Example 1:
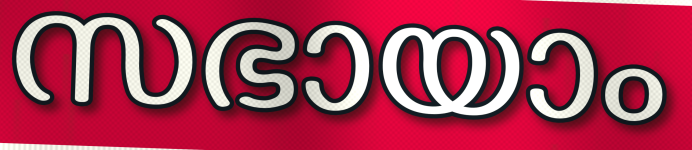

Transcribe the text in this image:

സഭായാം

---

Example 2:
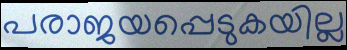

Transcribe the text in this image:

പരാജയപ്പെടുകയില്ല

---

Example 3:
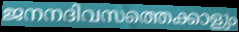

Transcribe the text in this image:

ജനനദിവസത്തെക്കാളും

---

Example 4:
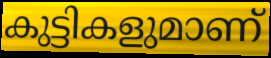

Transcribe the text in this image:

കുട്ടികളുമാണ്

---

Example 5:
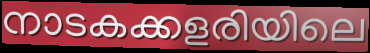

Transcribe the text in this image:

നാടകക്കളരിയിലെ